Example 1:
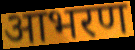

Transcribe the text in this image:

आभरण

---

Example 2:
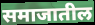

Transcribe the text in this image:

समाजातील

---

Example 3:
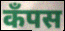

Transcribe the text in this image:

कॅंपस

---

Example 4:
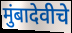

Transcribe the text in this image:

मुंबादेवीचे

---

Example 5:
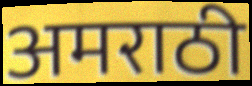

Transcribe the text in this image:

अमराठी